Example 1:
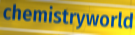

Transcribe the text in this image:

chemistryworld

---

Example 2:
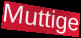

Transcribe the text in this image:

Muttige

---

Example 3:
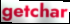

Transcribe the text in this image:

getchar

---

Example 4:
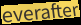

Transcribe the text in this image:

everafter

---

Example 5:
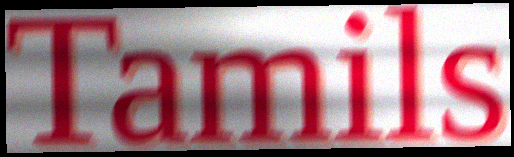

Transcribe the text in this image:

Tamils